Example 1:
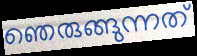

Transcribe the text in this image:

ഞെരുങ്ങുന്നത്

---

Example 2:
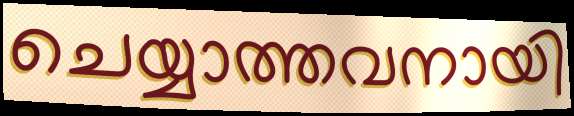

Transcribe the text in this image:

ചെയ്യാത്തവനായി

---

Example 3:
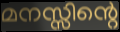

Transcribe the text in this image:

മനസ്സിന്റെ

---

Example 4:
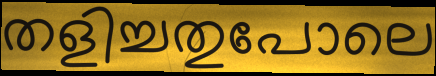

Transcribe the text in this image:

തളിച്ചതുപോലെ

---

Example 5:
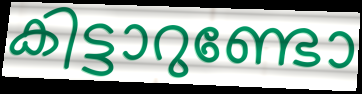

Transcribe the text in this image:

കിട്ടാറുണ്ടോ